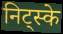
निट्स्के